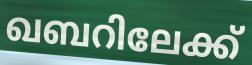
ഖബറിലേക്ക്